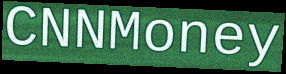
CNNMoney